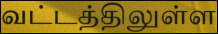
வட்டத்திலுள்ள